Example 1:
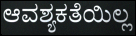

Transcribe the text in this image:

ಆವಶ್ಯಕತೆಯಿಲ್ಲ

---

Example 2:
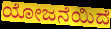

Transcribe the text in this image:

ಯೋಜನೆಯಿದೆ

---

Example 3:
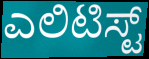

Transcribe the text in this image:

ಎಲಿಟಿಸ್ಟ್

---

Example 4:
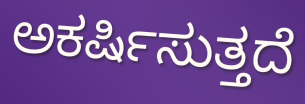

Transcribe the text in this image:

ಅಕರ್ಷಿಸುತ್ತದೆ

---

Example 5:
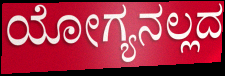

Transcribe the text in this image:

ಯೋಗ್ಯನಲ್ಲದ